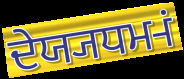
ਦੇਯ੍ਯਧਮ੍ਮਂ